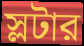
স্লটার